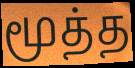
மூத்த